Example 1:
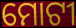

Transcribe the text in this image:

ମୋଟୀ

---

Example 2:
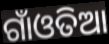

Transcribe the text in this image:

ଗାଁଓତିଆ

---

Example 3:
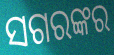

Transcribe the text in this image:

ସଗରଙ୍କର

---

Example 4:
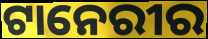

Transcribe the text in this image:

ଟାନେରୀର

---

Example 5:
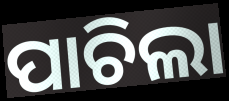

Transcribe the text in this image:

ପାଚିଲା